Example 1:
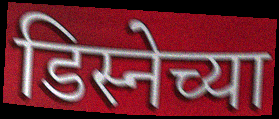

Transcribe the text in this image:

डिस्नेच्या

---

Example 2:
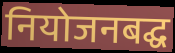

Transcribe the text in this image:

नियोजनबद्घ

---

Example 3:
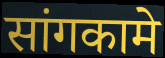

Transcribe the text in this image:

सांगकामे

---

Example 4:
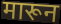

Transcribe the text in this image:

मारून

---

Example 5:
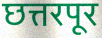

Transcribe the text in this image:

छत्तरपूर